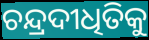
ଚନ୍ଦ୍ରଦୀଧିତିକୁ